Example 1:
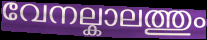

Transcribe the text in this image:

വേനല്കാലത്തും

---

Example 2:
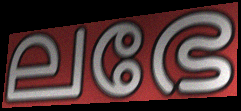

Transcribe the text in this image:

ലഭേ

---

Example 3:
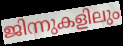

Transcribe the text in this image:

ജിന്നുകളിലും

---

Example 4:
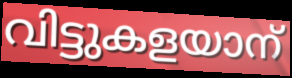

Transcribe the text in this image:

വിട്ടുകളയാന്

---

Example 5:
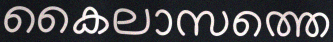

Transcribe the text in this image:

കൈലാസത്തെ